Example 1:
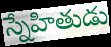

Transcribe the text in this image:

స్నేహితుడు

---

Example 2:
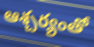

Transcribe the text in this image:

ఆశ్చర్యంతో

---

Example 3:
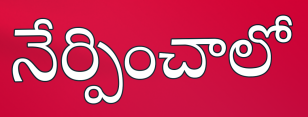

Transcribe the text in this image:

నేర్పించాలో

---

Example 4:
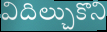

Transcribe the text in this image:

విదిల్చుకొని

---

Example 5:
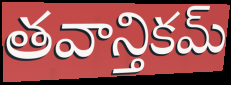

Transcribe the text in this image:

తవాన్తికమ్